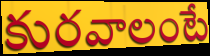
కురవాలంటే